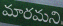
మారమని